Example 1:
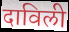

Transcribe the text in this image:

दाविली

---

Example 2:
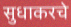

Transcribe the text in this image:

सुधाकरचे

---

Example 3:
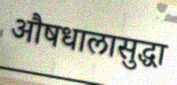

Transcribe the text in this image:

औषधालासुद्धा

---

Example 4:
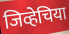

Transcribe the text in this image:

जिव्हेचिया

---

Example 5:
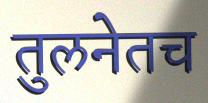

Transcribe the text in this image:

तुलनेतच